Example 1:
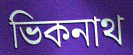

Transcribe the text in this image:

ভিকনাথ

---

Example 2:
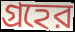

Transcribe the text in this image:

গ্রহের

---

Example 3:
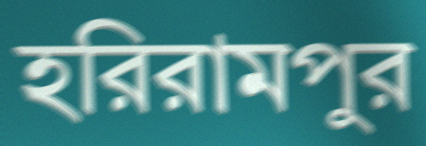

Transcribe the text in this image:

হরিরামপুর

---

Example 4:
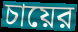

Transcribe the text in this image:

চায়ের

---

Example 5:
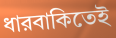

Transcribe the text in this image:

ধারবাকিতেই